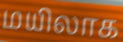
மயிலாக